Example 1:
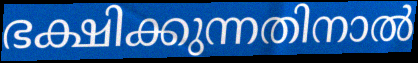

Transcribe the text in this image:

ഭക്ഷിക്കുന്നതിനാൽ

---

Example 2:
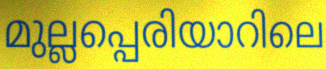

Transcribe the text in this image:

മുല്ലപ്പെരിയാറിലെ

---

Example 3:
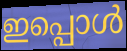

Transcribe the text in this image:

ഇപ്പൊൾ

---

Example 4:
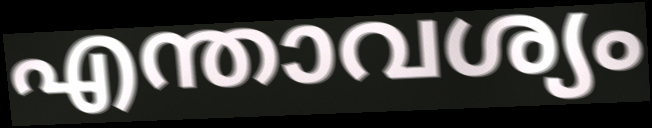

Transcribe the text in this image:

എന്താവശ്യം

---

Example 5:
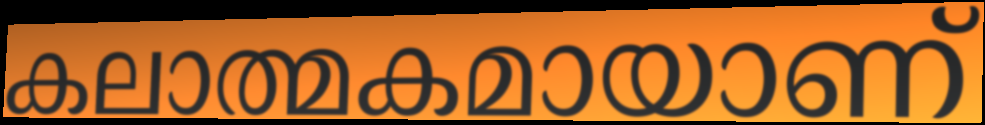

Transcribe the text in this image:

കലാത്മകമായാണ്